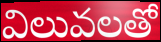
విలువలతో